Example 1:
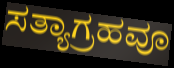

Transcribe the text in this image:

ಸತ್ಯಾಗ್ರಹವೂ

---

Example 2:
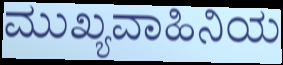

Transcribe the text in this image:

ಮುಖ್ಯವಾಹಿನಿಯ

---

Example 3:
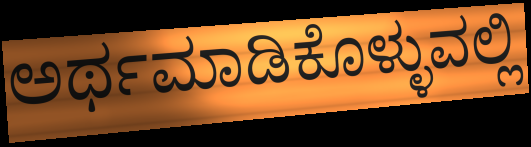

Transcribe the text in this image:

ಅರ್ಥಮಾಡಿಕೊಳ್ಳುವಲ್ಲಿ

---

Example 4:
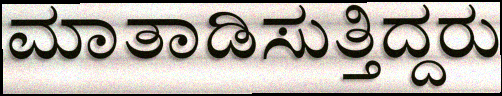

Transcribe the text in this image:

ಮಾತಾಡಿಸುತ್ತಿದ್ದರು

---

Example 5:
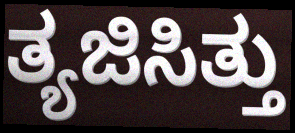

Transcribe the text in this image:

ತ್ಯಜಿಸಿತ್ತು